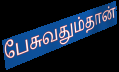
பேசுவதும்தான்